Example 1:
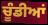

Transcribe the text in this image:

ਚੂੰਡੀਆਂ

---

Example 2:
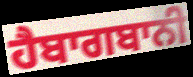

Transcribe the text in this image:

ਹੈਬਾਗਬਾਨੀ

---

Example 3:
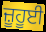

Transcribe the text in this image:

ਜ਼ੂਹੂਈ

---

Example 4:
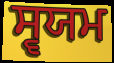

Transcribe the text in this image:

ਸ੍ਵਯਮ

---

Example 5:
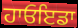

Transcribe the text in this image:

ਹਾਓਇਡਾ